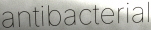
antibacterial